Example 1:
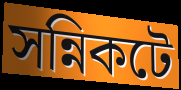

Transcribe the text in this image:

সন্নিকটে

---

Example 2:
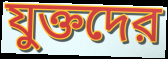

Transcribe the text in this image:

যুক্তদের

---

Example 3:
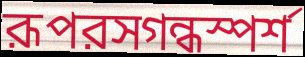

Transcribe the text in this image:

রূপরসগন্ধস্পর্শ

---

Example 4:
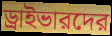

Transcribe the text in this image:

ড্রাইভারদের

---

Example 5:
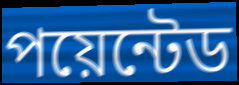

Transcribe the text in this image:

পয়েন্টেড